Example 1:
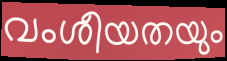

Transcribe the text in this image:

വംശീയതയും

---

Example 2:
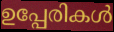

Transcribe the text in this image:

ഉപ്പേരികൾ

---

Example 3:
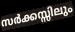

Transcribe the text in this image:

സർക്കസ്സിലും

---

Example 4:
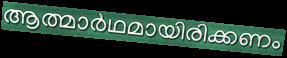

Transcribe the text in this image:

ആത്മാർഥമായിരിക്കണം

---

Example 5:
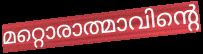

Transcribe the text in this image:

മറ്റൊരാത്മാവിന്റെ